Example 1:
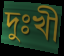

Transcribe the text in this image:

দুঃখী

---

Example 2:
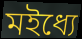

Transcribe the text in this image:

মইধ্যে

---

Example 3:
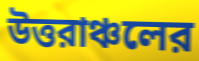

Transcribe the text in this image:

উত্তরাঞ্চলের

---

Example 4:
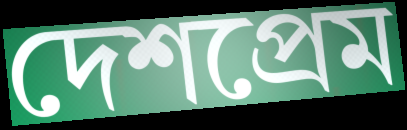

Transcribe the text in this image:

দেশপ্রেম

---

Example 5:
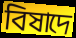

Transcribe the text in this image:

বিষাদে